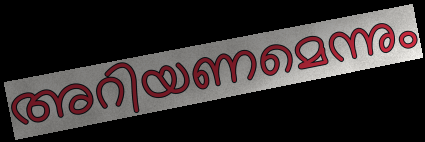
അറിയണമെന്നും